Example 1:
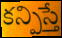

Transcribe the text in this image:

కన్పిస్తే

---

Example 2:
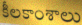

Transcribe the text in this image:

కీలకాంశాలు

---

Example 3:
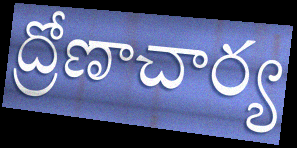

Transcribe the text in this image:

ద్రోణాచార్య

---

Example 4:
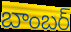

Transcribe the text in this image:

బాంబర్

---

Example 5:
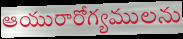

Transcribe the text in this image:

ఆయురారోగ్యములను